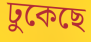
ঢুকেছে